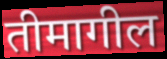
तीमागील